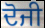
ਦੋਜੀ